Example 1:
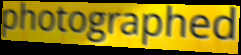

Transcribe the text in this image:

photographed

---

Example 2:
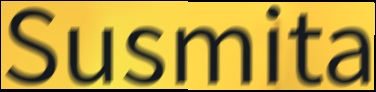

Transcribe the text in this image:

Susmita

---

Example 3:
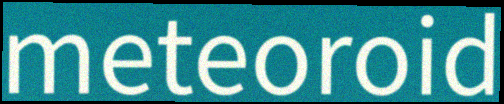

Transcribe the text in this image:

meteoroid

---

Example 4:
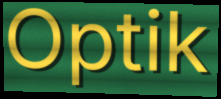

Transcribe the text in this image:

Optik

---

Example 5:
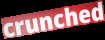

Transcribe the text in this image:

crunched